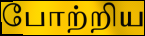
போற்றிய